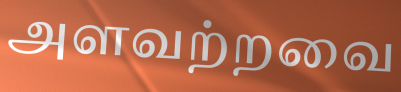
அளவற்றவை